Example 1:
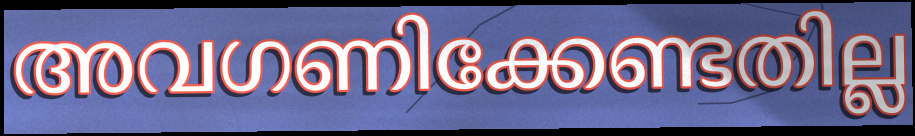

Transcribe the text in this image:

അവഗണിക്കേണ്ടതില്ല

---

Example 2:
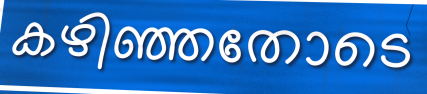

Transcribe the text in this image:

കഴിഞ്ഞതോടെ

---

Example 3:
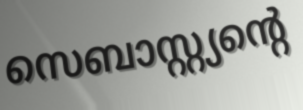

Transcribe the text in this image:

സെബാസ്റ്റ്യന്റെ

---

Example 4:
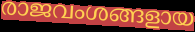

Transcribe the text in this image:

രാജവംശങ്ങളായ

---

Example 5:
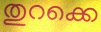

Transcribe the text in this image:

തുറക്കെ